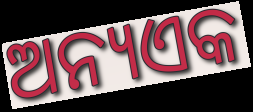
ଅନ୍ୟଏକ